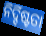
ନିର୍ଦ୍ଦିଷ୍ଟତା